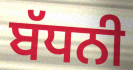
ਬੱਧਨੀ